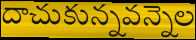
దాచుకున్నవన్నెల